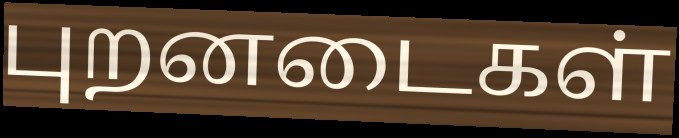
புறனடைகள்